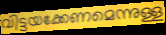
വിട്ടയക്കേണമെന്നുള്ള